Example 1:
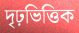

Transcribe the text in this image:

দৃঢ়ভিত্তিক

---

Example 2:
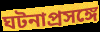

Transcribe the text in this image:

ঘটনাপ্রসঙ্গে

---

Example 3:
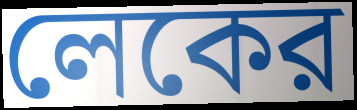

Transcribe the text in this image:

লেকের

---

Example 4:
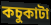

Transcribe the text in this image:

কচুকাটা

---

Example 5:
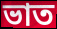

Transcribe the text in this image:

ভাত